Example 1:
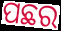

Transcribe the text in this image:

ପଛର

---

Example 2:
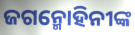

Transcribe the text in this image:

ଜଗନ୍ମୋହିନୀଙ୍କ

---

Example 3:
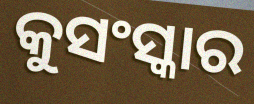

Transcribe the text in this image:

କୁସଂସ୍କାର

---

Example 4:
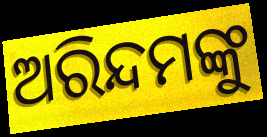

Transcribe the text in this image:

ଅରିନ୍ଦମଙ୍କୁ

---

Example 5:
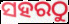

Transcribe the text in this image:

ସହରଠୁ